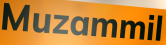
Muzammil